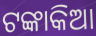
ଟଙ୍କାକିଆ